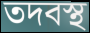
তদবস্থ